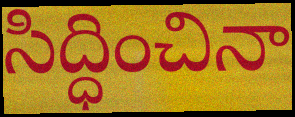
సిద్ధించినా